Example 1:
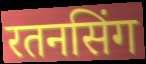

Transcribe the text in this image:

रतनसिंग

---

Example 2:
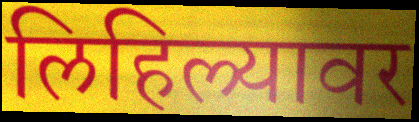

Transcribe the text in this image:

लिहिल्यावर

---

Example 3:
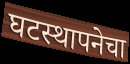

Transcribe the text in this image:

घटस्थापनेचा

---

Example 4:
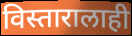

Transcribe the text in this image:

विस्तारालाही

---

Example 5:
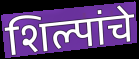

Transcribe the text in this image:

शिल्पांचे